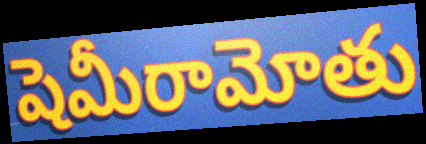
షెమీరామోతు